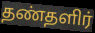
தண்தளிர்